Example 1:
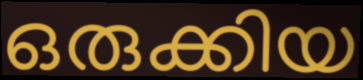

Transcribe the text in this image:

ഒരുക്കിയ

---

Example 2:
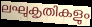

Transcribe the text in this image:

ലഘുകൃതികളും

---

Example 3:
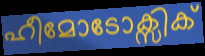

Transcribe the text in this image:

ഹീമോടോക്സിക്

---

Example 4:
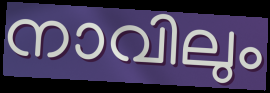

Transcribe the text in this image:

നാവിലും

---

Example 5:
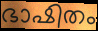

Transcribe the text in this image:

ഭാഷിതം